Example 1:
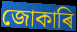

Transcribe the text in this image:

জোকাৰি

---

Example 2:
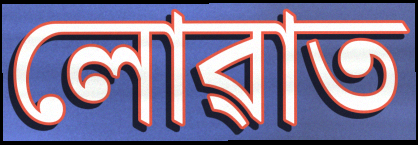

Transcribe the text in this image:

লোৱাত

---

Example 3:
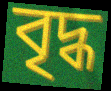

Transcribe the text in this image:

বৃদ্ধ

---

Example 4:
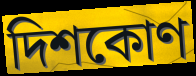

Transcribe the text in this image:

দিশকোণ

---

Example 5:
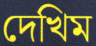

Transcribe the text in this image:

দেখিম